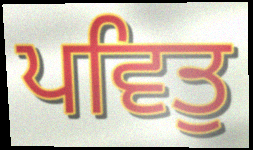
ਪਵਿਤੁ